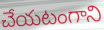
చేయటంగాని